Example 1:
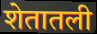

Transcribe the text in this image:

शेतातली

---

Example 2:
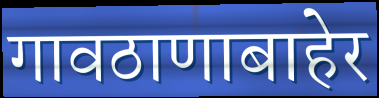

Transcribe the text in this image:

गावठाणाबाहेर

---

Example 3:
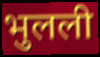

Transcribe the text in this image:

भुलली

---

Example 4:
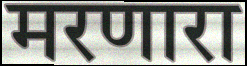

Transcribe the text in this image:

मरणारा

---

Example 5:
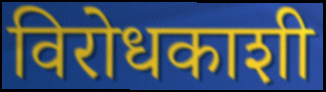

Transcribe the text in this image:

विरोधकाशी